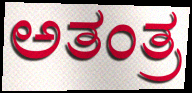
ಅತಂತ್ರ